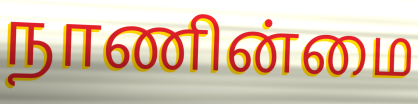
நாணின்மை